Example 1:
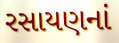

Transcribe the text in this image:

રસાયણનાં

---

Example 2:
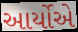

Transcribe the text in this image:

આર્યોએ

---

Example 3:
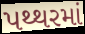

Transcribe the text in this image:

પથ્થરમાં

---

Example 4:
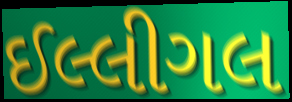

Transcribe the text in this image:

ઈલ્લીગલ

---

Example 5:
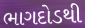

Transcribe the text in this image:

ભાગદોડથી